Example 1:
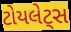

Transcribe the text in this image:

ટોયલેટ્સ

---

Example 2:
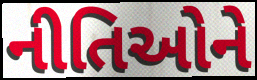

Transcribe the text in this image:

નીતિઓને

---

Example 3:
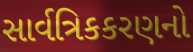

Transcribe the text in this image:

સાર્વત્રિકકરણનો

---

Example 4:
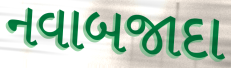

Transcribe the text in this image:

નવાબજાદા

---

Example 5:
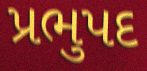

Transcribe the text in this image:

પ્રભુપદ